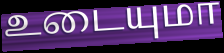
உடையுமா